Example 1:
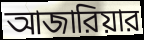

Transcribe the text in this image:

আজারিয়ার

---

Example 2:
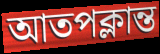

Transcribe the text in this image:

আতপক্লান্ত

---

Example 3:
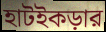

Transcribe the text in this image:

হাটইকড়ার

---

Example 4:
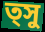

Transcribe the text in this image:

ত্সু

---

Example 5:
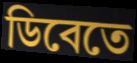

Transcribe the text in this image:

ডিবেতে